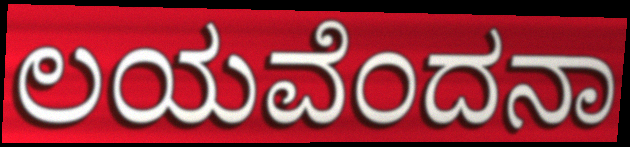
ಲಯವೆಂದನಾ